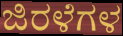
ಜಿರಳೆಗಳ